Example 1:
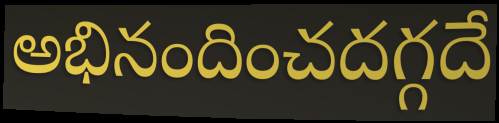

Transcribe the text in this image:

అభినందించదగ్గదే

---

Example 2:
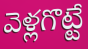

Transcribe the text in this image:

వెళ్లగొట్టే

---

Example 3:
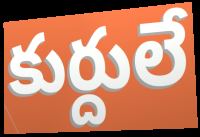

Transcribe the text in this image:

కుర్దులే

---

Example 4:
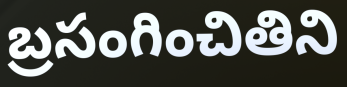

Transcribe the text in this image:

బ్రసంగించితిని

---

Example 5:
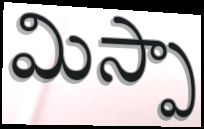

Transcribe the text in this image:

మిస్పా